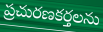
ప్రచురణకర్తలను